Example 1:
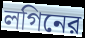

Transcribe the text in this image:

লগিনের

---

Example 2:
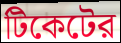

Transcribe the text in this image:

টিকেটের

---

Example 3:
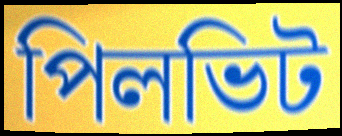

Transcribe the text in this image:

পিলভিট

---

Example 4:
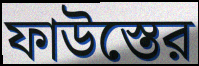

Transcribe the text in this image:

ফাউস্তের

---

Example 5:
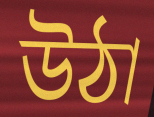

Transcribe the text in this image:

উঠা